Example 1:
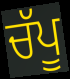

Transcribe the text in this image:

ਚੱਪੂ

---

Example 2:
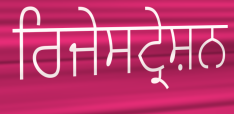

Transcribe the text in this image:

ਰਿਜੇਸਟ੍ਰੇਸ਼ਨ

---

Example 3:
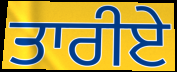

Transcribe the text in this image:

ਤਾਰੀਏ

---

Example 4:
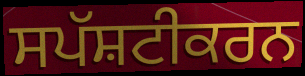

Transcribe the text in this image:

ਸਪੱਸ਼ਟੀਕਰਨ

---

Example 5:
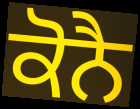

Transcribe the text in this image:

ਕੋਨੈ